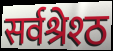
सर्वश्रेश्ठ